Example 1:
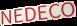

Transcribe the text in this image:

NEDECO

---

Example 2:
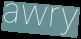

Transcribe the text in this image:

awry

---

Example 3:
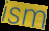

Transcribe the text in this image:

ism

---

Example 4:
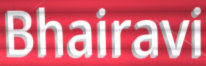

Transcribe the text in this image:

Bhairavi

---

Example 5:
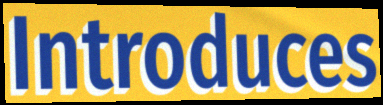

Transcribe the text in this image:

Introduces